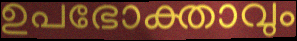
ഉപഭോക്താവും